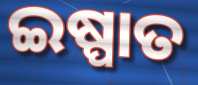
ଇଷ୍ପାତ